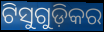
ଟିସୁଗୁଡ଼ିକର